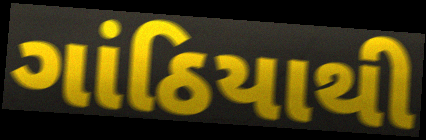
ગાંઠિયાથી